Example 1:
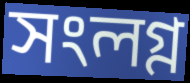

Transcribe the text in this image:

সংলগ্ন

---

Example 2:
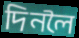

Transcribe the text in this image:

দিনলৈ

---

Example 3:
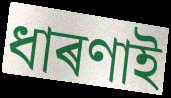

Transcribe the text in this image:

ধাৰণাই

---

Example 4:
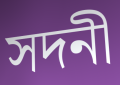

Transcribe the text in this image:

সদনী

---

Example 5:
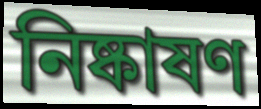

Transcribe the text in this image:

নিষ্কাষণ